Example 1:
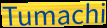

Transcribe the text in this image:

Tumachi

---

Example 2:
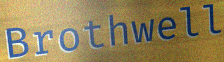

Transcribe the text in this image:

Brothwell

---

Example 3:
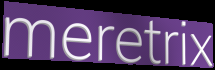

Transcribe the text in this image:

meretrix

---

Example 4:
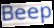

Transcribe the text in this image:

Beep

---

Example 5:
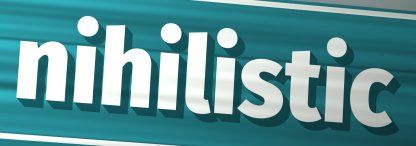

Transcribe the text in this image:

nihilistic